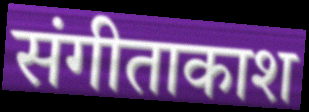
संगीताकाश